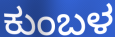
ಕುಂಬಳ